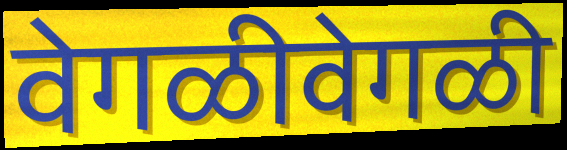
वेगळीवेगळी